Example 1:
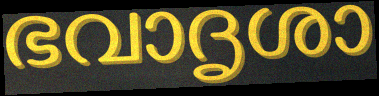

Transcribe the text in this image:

ഭവാദൃശാ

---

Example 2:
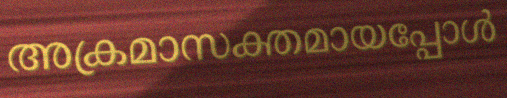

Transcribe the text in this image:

അക്രമാസക്തമായപ്പോൾ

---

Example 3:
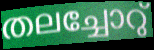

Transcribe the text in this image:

തലച്ചോറു്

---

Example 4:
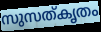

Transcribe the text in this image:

സുസത്കൃതം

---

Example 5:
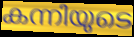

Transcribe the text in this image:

കന്നിയുടെ